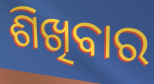
ଶିଖିବାର